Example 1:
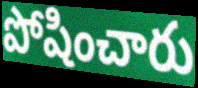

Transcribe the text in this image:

పోషించారు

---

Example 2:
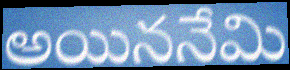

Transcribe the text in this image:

అయిననేమి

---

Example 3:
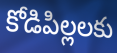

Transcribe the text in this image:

కోడిపిల్లలకు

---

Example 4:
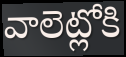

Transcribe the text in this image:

వాలెట్లోకి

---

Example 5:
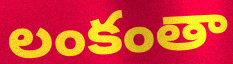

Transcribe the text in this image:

లంకంతా